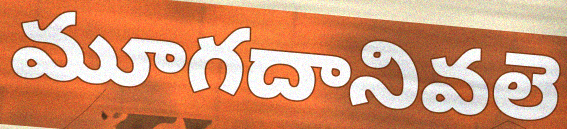
మూగదానివలె